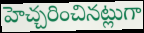
హెచ్చరించినట్లుగా